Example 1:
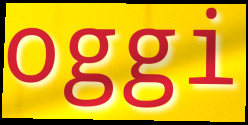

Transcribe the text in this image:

oggi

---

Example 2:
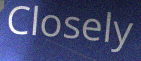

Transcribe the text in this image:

Closely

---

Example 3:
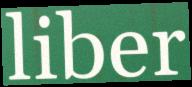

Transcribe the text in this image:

liber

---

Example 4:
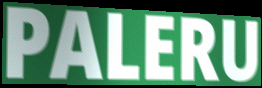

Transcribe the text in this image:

PALERU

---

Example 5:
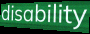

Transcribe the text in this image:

disability